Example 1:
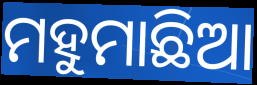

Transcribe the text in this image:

ମହୁମାଛିଆ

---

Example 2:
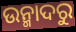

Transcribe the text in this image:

ଉନ୍ମାଦରୁ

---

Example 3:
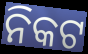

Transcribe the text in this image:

ନିକଟ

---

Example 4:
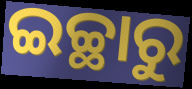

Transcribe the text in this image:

ଇଚ୍ଛାରୁ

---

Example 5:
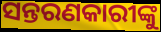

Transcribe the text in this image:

ସନ୍ତରଣକାରୀଙ୍କୁ